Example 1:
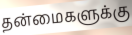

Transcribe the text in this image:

தன்மைகளுக்கு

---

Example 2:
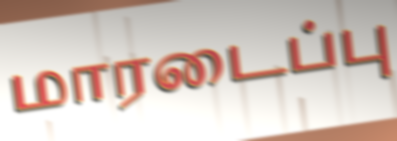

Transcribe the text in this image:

மாரடைப்பு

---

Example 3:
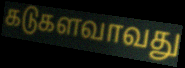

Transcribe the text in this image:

கடுகளவாவது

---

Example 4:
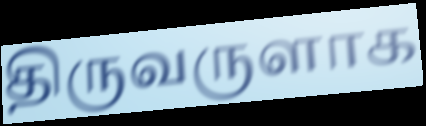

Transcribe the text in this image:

திருவருளாக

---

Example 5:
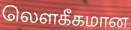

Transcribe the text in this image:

லெளகீகமான